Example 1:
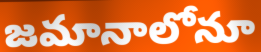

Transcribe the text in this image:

జమానాలోనూ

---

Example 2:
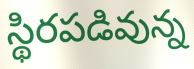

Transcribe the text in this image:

స్థిరపడివున్న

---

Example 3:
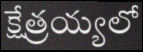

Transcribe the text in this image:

క్షేత్రయ్యలో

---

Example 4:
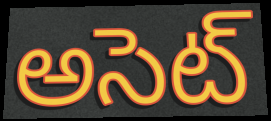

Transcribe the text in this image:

అసెట్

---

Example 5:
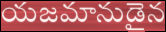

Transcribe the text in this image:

యజమానుడైన